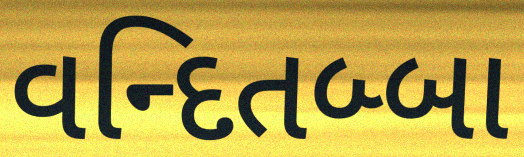
વન્દિતબ્બા